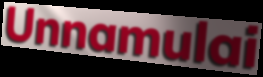
Unnamulai